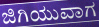
ಜಿಗಿಯುವಾಗ